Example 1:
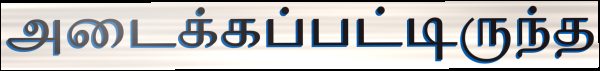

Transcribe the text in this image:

அடைக்கப்பட்டிருந்த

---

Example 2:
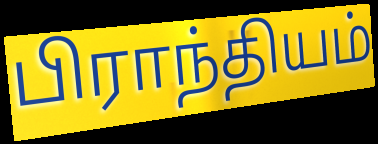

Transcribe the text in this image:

பிராந்தியம்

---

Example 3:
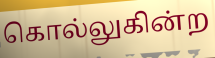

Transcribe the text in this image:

கொல்லுகின்ற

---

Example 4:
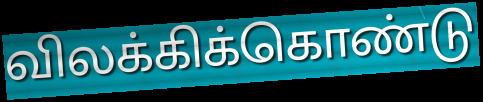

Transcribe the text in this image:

விலக்கிக்கொண்டு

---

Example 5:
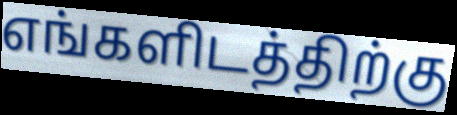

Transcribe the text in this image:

எங்களிடத்திற்கு